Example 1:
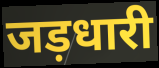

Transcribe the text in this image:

जड़धारी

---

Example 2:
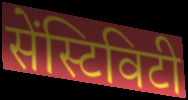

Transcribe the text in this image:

सेंस्टिविटी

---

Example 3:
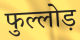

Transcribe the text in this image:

फुल्लोड़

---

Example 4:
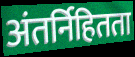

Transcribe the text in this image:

अंतर्निहितता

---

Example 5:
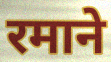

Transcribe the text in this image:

रमाने